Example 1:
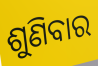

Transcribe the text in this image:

ଶୁଣିବାର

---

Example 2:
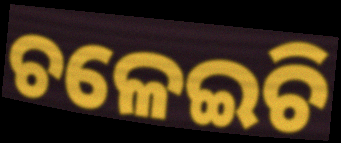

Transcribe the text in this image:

ଚଳେଇଚି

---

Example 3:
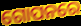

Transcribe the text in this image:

ଗୋପନରେ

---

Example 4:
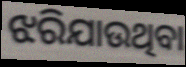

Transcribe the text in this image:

ଝରିଯାଉଥିବା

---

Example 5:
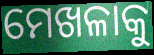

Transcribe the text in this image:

ମେଖଳାକୁ